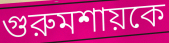
গুরুমশায়কে